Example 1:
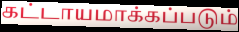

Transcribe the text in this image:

கட்டாயமாக்கப்படும்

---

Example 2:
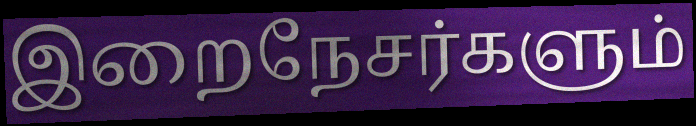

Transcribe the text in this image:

இறைநேசர்களும்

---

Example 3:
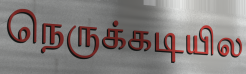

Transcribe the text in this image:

நெருக்கடியில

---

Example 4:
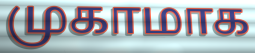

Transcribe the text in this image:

முகாமாக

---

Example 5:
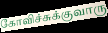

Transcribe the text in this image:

கோவிச்சுக்குவாரு